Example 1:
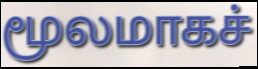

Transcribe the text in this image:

மூலமாகச்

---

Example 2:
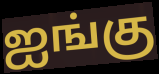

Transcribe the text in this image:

ஐங்கு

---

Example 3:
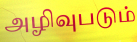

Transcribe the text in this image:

அழிவுபடும்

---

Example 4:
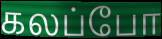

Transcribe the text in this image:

கலப்போ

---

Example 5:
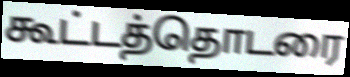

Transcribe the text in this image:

கூட்டத்தொடரை